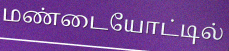
மண்டையோட்டில்